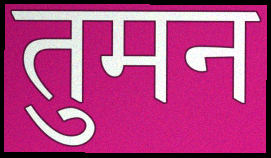
तुमन